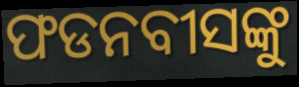
ଫଡନବୀସଙ୍କୁ